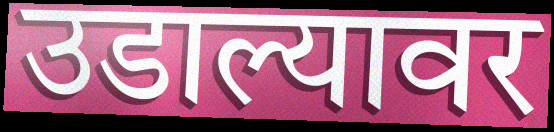
उडाल्यावर